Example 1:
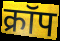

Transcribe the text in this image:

क्रॉप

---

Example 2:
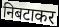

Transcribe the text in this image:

निबटाकर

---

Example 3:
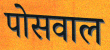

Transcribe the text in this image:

पोसवाल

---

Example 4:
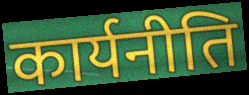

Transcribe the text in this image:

कार्यनीति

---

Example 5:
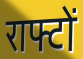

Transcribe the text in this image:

राफ्टों